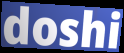
doshi